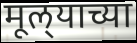
मूल्याच्या